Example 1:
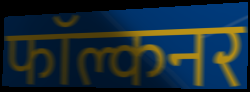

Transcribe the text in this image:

फॉल्कनर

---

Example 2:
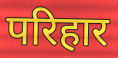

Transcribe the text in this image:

परिहार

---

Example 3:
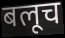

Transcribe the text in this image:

बलूच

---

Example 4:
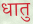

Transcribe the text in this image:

धातु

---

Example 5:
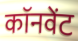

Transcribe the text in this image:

कॉनवेंट